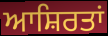
ਆਸ਼ਿਰਤਾਂ